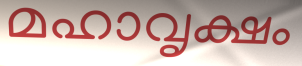
മഹാവൃക്ഷം